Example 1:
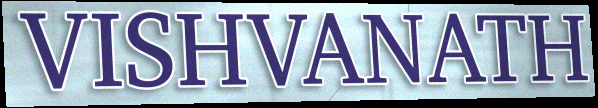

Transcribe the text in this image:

VISHVANATH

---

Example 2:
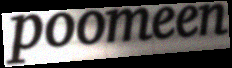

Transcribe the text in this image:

poomeen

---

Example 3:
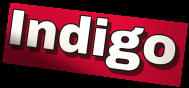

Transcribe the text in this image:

Indigo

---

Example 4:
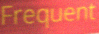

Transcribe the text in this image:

Frequent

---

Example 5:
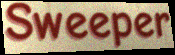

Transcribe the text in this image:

Sweeper